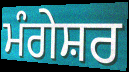
ਮੰਗੇਸ਼ਰ